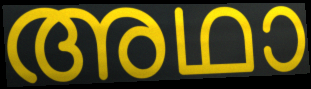
അഥാ